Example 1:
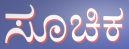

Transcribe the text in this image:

ಸೂಚಿಕ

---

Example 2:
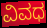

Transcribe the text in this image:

ವಿವಧ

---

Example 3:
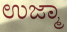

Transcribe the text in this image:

ಉಜ್ಮಾ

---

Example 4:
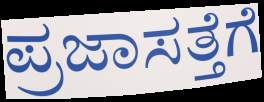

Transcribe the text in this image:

ಪ್ರಜಾಸತ್ತೆಗೆ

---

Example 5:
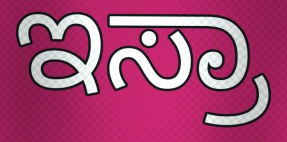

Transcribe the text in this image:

ಇಸ್ರಾ